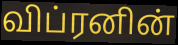
விப்ரனின்